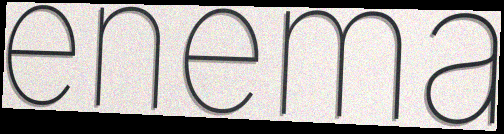
enema